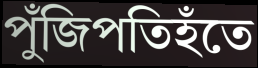
পুঁজিপতিহঁতে